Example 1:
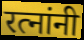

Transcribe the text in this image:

रत्नांनी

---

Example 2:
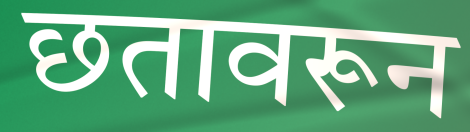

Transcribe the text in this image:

छतावरून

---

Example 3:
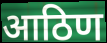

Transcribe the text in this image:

आठिण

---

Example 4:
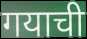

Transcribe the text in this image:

गयाची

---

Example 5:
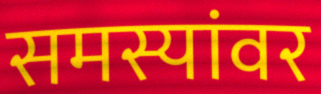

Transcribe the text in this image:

समस्यांवर